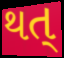
થત્